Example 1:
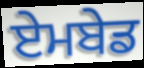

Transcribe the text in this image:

ਏਮਬੇਡ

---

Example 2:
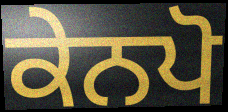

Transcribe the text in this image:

ਕੇਨਪੋ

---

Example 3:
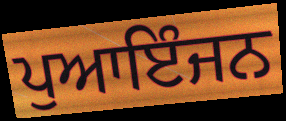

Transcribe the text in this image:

ਪੁਆਇੰਜਨ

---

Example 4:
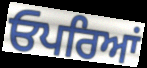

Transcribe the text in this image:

ਓਪਰਿਆਂ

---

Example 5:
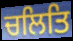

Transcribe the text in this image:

ਚਲਿਤਿ